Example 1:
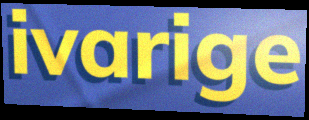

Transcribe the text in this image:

ivarige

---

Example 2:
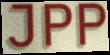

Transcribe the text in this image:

JPP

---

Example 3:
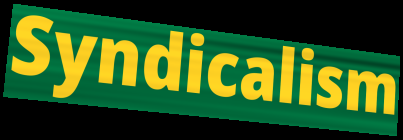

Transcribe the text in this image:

Syndicalism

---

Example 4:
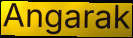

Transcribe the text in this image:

Angarak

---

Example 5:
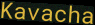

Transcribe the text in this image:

Kavacha